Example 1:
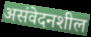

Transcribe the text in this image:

असंवेदनशील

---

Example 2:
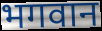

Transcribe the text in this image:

भगवान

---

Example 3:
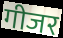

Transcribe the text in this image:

गीजर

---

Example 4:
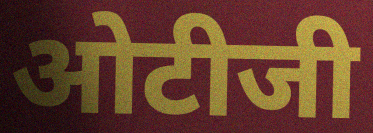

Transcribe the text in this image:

ओटीजी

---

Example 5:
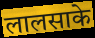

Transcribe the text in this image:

लालसाके